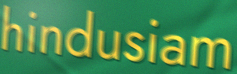
hindusiam